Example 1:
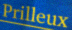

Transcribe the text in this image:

Prilleux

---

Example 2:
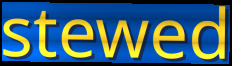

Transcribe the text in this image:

stewed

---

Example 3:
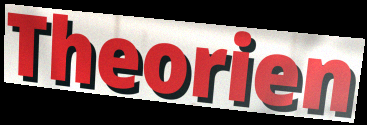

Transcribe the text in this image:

Theorien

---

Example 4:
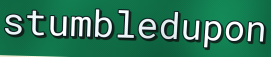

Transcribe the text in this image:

stumbledupon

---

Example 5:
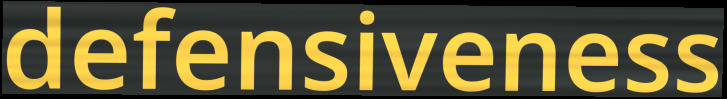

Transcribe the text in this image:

defensiveness